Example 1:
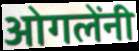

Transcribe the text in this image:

ओगलेंनी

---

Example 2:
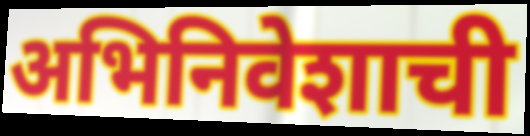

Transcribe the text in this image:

अभिनिवेशाची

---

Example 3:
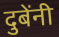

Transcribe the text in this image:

दुबेंनी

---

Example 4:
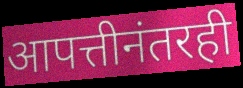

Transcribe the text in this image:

आपत्तीनंतरही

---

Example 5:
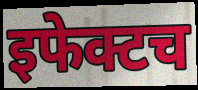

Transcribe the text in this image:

इफेक्टच